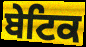
ਬੇਟਿਕ